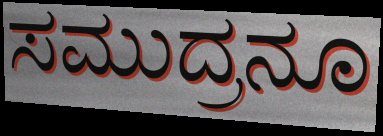
ಸಮುದ್ರನೂ